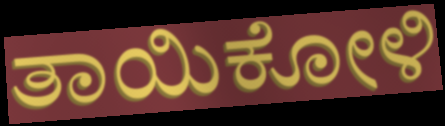
ತಾಯಿಕೋಳಿ